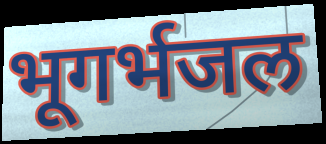
भूगर्भजल